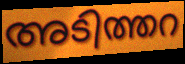
അടിത്തറ